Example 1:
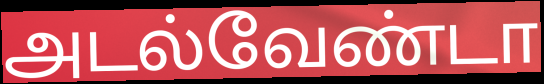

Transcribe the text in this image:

அடல்வேண்டா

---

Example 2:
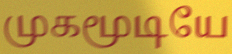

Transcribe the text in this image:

முகமூடியே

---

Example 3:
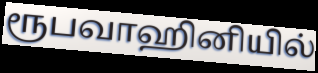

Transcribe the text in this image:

ரூபவாஹினியில்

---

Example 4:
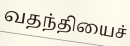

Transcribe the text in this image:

வதந்தியைச்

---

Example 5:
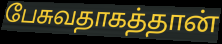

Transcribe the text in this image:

பேசுவதாகத்தான்